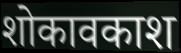
शोकावकाश